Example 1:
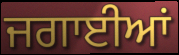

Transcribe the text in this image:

ਜਗਾਈਆਂ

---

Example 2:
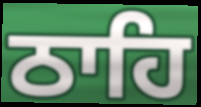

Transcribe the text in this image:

ਠਾਹਿ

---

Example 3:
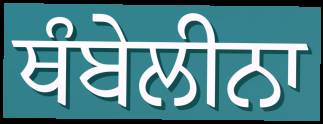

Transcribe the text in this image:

ਥੰਬੇਲੀਨਾ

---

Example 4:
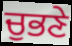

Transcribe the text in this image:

ਚੁਭਣੇ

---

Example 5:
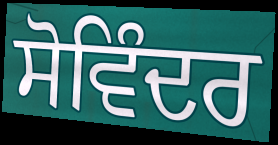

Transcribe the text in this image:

ਸੋਵਿੰਦਰ